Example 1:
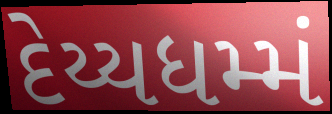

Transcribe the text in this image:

દેય્યધમ્મં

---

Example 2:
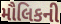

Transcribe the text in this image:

મૌલિકની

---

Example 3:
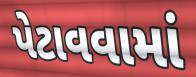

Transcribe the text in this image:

પેટાવવામાં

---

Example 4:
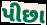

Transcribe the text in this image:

પીછા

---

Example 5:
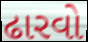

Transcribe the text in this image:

ઢારવો